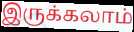
இருக்கலாம்